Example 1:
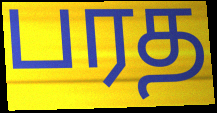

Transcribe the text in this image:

பரத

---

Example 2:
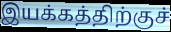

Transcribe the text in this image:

இயக்கத்திற்குச்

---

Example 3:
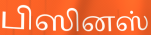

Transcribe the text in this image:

பிஸினஸ்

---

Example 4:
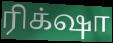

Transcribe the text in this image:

ரிக்‌ஷா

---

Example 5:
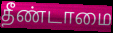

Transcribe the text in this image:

தீண்டாமை